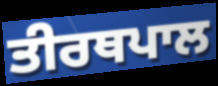
ਤੀਰਥਪਾਲ